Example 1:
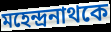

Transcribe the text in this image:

মহেন্দ্রনাথকে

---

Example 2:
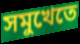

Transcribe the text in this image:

সমুখেতে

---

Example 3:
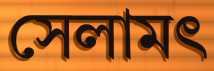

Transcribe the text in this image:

সেলামৎ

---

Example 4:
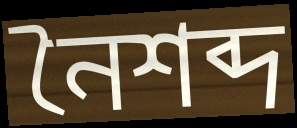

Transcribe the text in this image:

নৈশব্দ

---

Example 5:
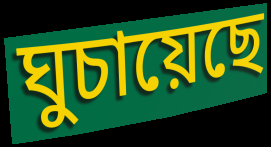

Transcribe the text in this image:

ঘুচায়েছে